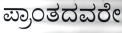
ಪ್ರಾಂತದವರೇ